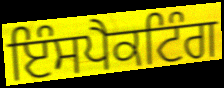
ਇੰਸਪੈਕਟਿੰਗ